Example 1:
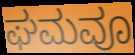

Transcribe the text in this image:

ಘಮವೂ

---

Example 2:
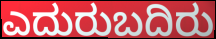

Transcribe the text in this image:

ಎದುರುಬದಿರು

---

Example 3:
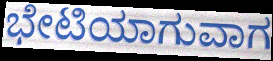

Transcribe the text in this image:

ಭೇಟಿಯಾಗುವಾಗ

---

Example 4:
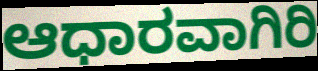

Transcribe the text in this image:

ಆಧಾರವಾಗಿರಿ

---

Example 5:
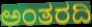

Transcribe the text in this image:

ಅಂತರದಿ